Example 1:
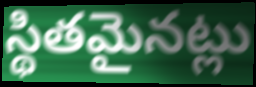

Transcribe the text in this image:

స్థితమైనట్లు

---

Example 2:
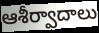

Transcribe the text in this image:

ఆశీర్వాదాలు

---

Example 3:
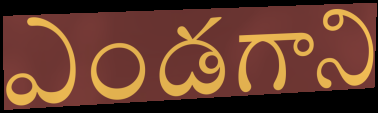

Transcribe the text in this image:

ఎండగాని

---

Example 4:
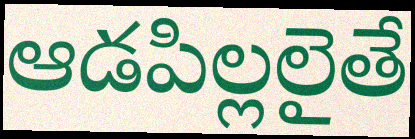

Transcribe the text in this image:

ఆడపిల్లలైతే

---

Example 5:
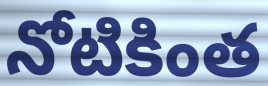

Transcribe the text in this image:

నోటికింత